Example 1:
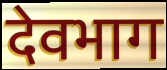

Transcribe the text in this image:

देवभाग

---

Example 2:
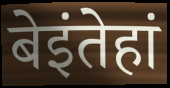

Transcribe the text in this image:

बेइंतेहां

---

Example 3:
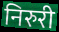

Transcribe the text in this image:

निरुरी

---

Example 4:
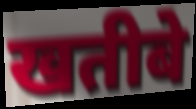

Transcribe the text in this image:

खतीबे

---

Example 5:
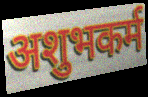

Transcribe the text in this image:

अशुभकर्म